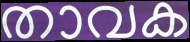
താവക